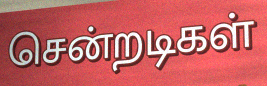
சென்றடிகள்